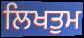
ਲਿਖਤੁਮ